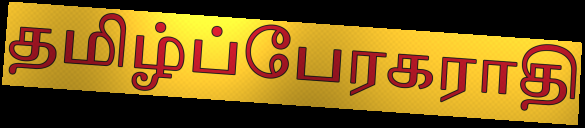
தமிழ்ப்பேரகராதி